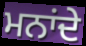
ਮਨਾਂਦੇ